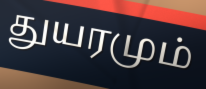
துயரமும்